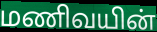
மணிவயின்